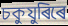
চকুযুৰিৰে